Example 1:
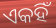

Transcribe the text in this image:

ଏକହିଁ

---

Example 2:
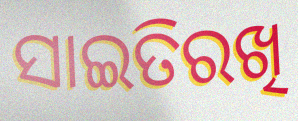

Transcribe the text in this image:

ସାଇତିରଖି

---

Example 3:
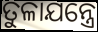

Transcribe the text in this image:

ତୁଳାଯନ୍ତ୍ରେ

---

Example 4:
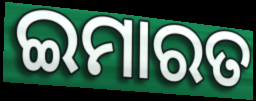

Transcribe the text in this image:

ଇମାରତ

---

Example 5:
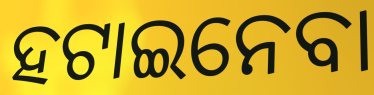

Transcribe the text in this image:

ହଟାଇନେବା